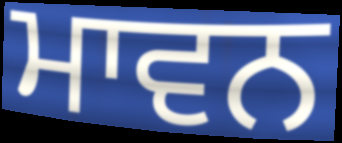
ਮਾਵਨ